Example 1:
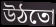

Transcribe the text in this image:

উঠতো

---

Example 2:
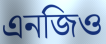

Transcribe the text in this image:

এনজিও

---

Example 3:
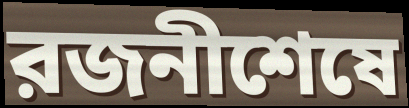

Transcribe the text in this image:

রজনীশেষে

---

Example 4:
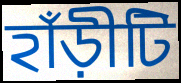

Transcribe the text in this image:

হাঁড়ীটি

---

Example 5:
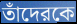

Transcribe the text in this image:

তাঁদেরকে